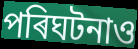
পৰিঘটনাও